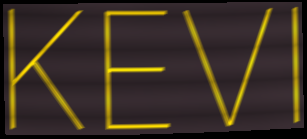
KEVI